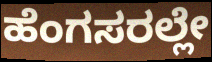
ಹೆಂಗಸರಲ್ಲೇ